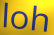
loh